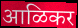
आळिकर